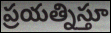
ప్రయత్నిస్తూ